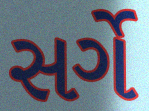
સર્ગે